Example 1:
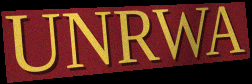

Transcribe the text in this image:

UNRWA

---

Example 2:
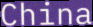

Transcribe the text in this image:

China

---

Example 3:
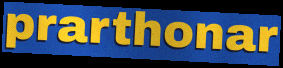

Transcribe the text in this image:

prarthonar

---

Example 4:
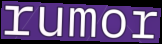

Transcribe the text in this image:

rumor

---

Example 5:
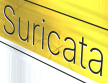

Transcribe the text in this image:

Suricata